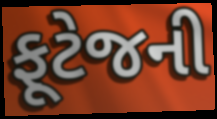
ફૂટેજની